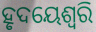
ହୃଦୟେଶ୍ଵରି